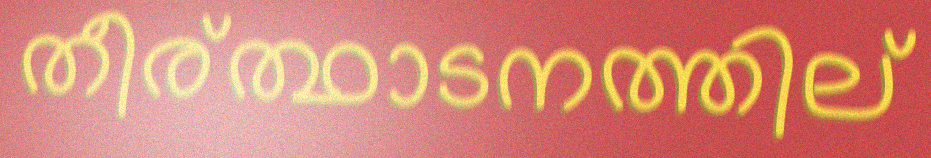
തീര്ത്ഥാടനത്തില്